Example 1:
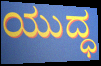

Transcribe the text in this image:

ಯುದ್ಧ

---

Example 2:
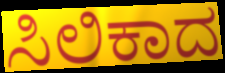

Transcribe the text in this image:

ಸಿಲಿಕಾದ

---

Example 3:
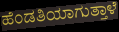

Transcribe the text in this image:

ಹೆಂಡತಿಯಾಗುತ್ತಾಳೆ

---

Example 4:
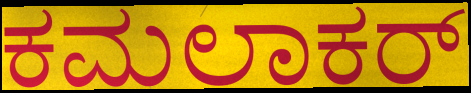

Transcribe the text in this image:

ಕಮಲಾಕರ್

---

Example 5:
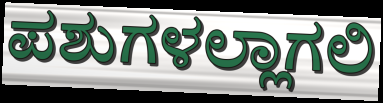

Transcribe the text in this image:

ಪಶುಗಳಲ್ಲಾಗಲಿ